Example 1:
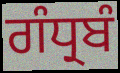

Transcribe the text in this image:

ਗੰਧ੍ਰਬੰ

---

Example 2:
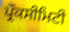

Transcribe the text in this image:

ਪ੍ਰੌਕਸੀਮਿਟੀ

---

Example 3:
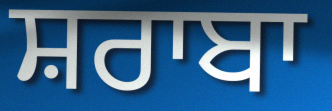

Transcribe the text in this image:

ਸ਼ਰਾਬਾ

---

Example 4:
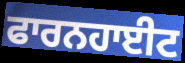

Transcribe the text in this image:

ਫਾਰਨਹਾਈਟ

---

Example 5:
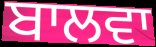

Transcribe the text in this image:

ਬਾਲਵਾ